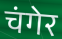
चंगेर